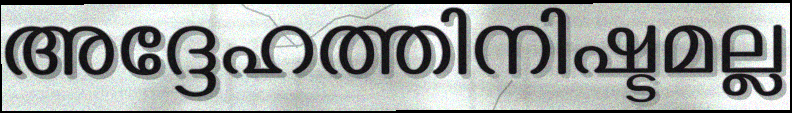
അദ്ദേഹത്തിനിഷ്ടമല്ല